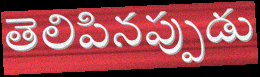
తెలిపినప్పుడు